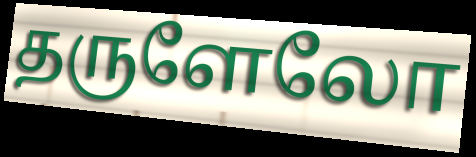
தருளேலோ